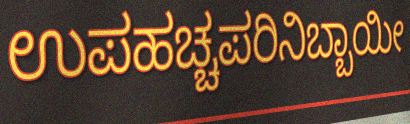
ಉಪಹಚ್ಚಪರಿನಿಬ್ಬಾಯೀ